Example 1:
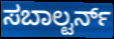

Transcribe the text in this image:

ಸಬಾಲ್ಟರ್ನ್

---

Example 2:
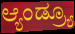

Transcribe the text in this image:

ಆ್ಯಂಡ್ರ್ಯೂ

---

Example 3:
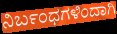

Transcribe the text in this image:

ನಿರ್ಬಂಧಗಳಿಂದಾಗಿ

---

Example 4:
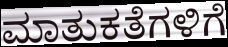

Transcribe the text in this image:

ಮಾತುಕತೆಗಳಿಗೆ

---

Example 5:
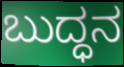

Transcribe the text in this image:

ಬುದ್ಧನ